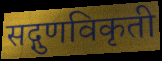
सद्गुणविकृती